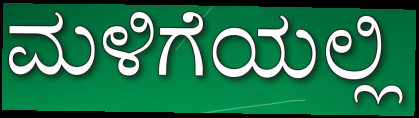
ಮಳಿಗೆಯಲ್ಲಿ